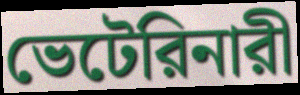
ভেটেরিনারী